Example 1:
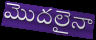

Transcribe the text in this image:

మొదలైనా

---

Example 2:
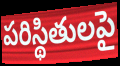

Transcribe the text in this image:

పరిస్థితులపై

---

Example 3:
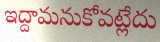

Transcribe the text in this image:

ఇద్దామనుకోవట్లేదు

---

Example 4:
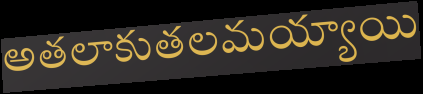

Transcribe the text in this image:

అతలాకుతలమయ్యాయి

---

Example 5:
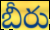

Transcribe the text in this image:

బీరు